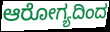
ಆರೋಗ್ಯದಿಂದ